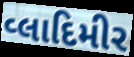
વ્લાદિમીર